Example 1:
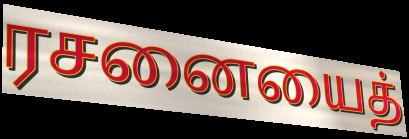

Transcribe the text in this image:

ரசனையைத்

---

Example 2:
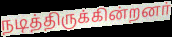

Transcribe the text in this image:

நடித்திருக்கின்றனர்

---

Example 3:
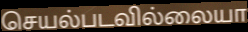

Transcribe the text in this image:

செயல்படவில்லையா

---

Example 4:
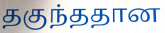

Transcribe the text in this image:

தகுந்ததான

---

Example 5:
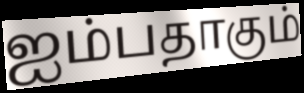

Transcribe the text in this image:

ஐம்பதாகும்